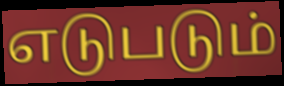
எடுபடும்